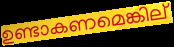
ഉണ്ടാകണമെങ്കില്